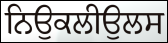
ਨਿਉਕਲੀਉਲਸ